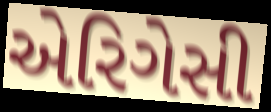
એરિગેસી